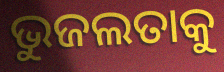
ଭୁଜଲତାକୁ